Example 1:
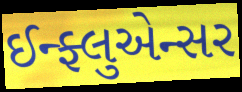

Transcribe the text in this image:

ઈન્ફ્લુએન્સર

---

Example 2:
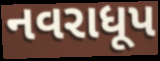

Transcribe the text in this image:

નવરાધૂપ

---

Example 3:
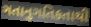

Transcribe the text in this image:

ગતાનુગતિકતાથી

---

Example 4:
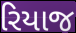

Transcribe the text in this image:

રિયાજ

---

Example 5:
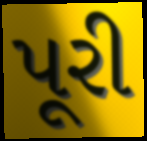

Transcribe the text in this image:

પૂરી